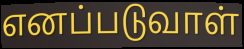
எனப்படுவாள்